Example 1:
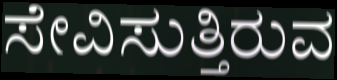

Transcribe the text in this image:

ಸೇವಿಸುತ್ತಿರುವ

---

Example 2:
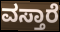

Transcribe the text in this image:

ವಸ್ತಾರೆ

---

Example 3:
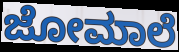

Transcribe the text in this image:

ಜೋಮಾಲೆ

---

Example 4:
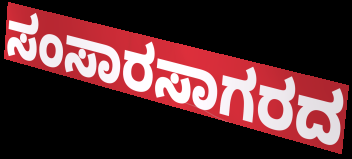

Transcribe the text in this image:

ಸಂಸಾರಸಾಗರದ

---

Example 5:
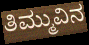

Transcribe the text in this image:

ತಿಮ್ಮುವಿನ